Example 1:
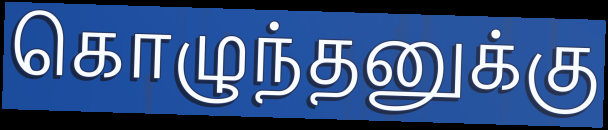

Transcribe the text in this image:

கொழுந்தனுக்கு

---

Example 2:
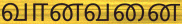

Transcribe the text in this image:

வானவனை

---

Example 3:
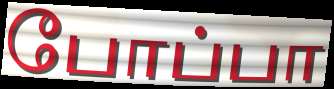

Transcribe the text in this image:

போப்பா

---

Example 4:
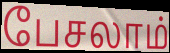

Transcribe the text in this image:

பேசலாம்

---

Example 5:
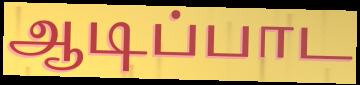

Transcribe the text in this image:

ஆடிப்பாட